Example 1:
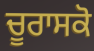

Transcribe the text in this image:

ਚੂਰਾਸਕੋ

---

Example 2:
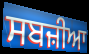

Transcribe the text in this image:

ਸਬਜ਼ੀਆ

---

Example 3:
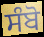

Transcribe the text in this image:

ਸੰਬੋ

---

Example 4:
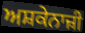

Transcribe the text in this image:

ਅਸ਼ਕੇਨਾਜ਼ੀ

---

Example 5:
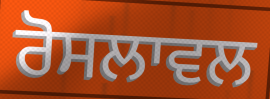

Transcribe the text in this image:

ਰੋਸਲਾਵਲ